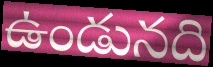
ఉండునది